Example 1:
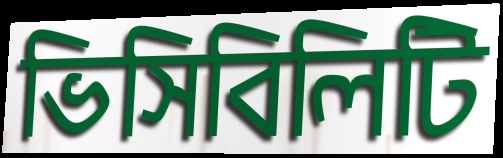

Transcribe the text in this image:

ভিসিবিলিটি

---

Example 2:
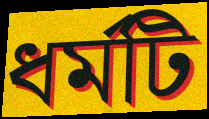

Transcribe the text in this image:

ধর্মটি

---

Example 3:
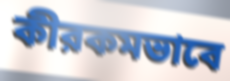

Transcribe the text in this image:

কীরকমভাবে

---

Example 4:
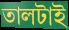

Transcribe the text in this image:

তালটাই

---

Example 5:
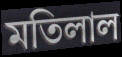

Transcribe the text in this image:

মতিলাল